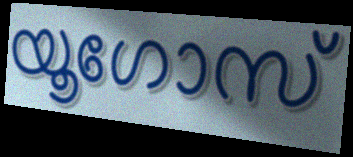
യൂഗോസ്